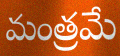
మంత్రమే